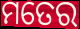
ମତେର